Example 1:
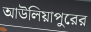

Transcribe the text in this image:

আউলিয়াপুরের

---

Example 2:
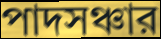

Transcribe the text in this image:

পাদসঞ্চার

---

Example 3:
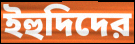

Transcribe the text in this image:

ইহুদিদের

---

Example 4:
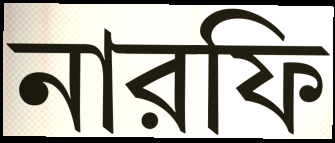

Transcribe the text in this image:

নারফি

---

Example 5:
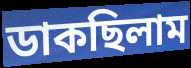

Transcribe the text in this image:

ডাকছিলাম